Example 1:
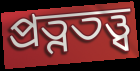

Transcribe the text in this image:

প্রত্নতত্ত্ব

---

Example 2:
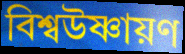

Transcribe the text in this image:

বিশ্বউষ্ণায়ণ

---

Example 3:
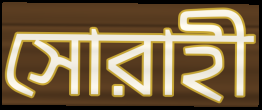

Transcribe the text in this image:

সোরাহী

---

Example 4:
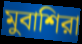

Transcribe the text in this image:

মুবাশিরা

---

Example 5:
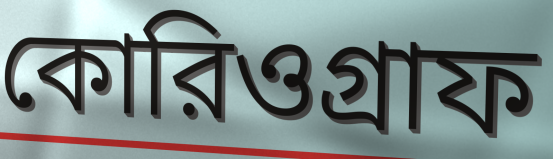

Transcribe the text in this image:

কোরিওগ্রাফ